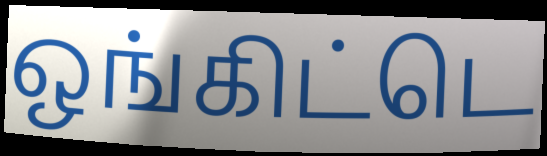
ஒங்கிட்டெ